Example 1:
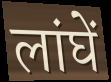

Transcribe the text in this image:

लांघें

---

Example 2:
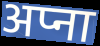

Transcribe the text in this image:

अप्ना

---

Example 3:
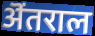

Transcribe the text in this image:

ऄंतराल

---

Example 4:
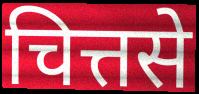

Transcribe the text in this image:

चित्तसे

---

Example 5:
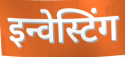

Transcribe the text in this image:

इन्वेस्टिंग